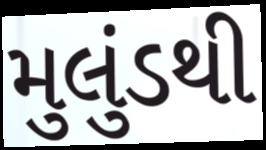
મુલુંડથી